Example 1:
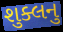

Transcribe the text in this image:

શુક્લનુ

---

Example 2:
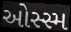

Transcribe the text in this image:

ઓસ્સ્મ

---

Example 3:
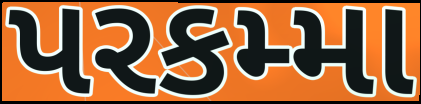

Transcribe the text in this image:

પરકમ્મા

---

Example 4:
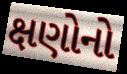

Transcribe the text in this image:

ક્ષણોનો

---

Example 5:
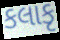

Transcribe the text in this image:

કલાકૃ